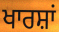
ਖਾਰਸ਼ਾਂ